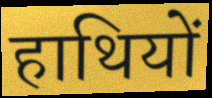
हाथियों